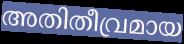
അതിതീവ്രമായ